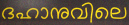
ദഹാനുവിലെ